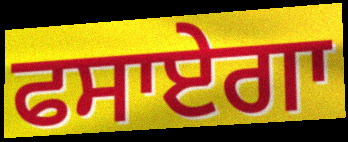
ਫਸਾਏਗਾ